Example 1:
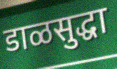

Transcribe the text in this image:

डाळसुद्धा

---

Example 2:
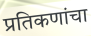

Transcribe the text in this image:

प्रतिकणांचा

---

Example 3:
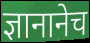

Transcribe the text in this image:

ज्ञानानेच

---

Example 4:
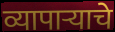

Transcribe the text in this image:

व्यापाऱ्याचे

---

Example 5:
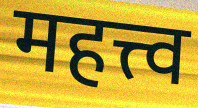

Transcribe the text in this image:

महत्त्व